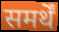
समर्थें